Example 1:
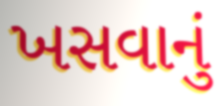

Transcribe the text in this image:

ખસવાનું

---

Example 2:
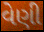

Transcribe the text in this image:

વેણી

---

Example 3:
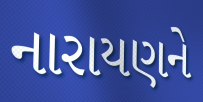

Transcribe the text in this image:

નારાયણને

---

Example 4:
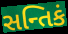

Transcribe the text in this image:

સન્તિકં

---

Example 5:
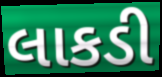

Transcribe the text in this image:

લાકડી